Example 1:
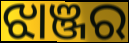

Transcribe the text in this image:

ଝାଞ୍ଜର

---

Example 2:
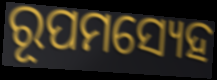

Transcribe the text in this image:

ରୂପମସ୍ୟେହ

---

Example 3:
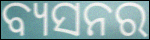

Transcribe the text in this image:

ବ୍ୟସନର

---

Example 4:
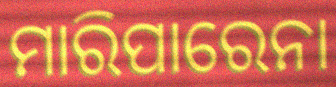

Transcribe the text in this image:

ମାରିପାରେନା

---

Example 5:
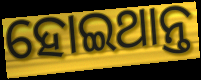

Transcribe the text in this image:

ହୋଇଥାନ୍ତ